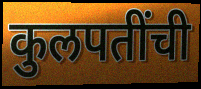
कुलपतींची